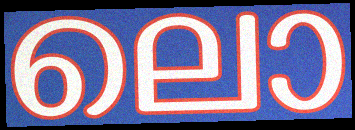
ലൊ